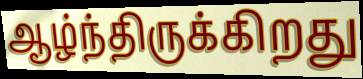
ஆழ்ந்திருக்கிறது